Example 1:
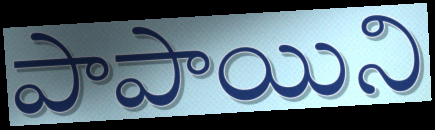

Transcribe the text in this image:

పాపాయిని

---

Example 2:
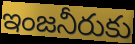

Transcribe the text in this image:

ఇంజనీరుకు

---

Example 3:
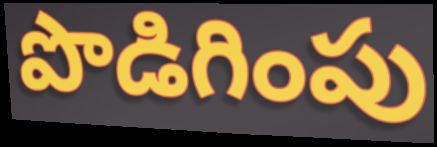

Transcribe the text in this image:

పొడిగింపు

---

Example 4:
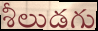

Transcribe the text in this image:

శీలుడగు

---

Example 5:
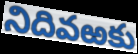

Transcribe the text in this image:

నిదివఱకు